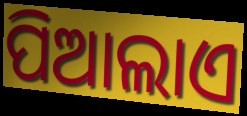
ପିଆଲାଏ